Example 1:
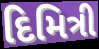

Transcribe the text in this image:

દિમિત્રી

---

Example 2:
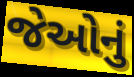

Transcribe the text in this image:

જેઓનું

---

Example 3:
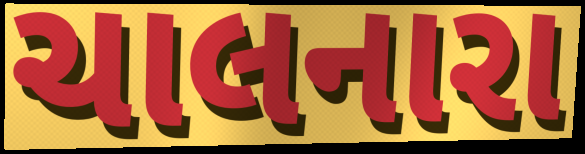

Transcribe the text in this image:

ચાલનારા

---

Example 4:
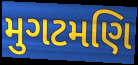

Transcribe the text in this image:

મુગટમણિ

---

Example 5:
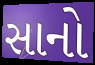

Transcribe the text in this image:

સાનો